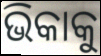
ଭିକାକୁ